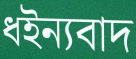
ধইন্যবাদ